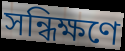
সন্ধিক্ষণে